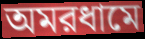
অমরধামে